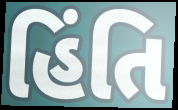
હિંતિ